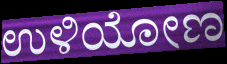
ಉಳಿಯೋಣ